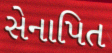
સેનાપિત